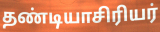
தண்டியாசிரியர்